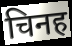
चिनह